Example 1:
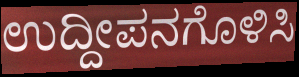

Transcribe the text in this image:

ಉದ್ದೀಪನಗೊಳಿಸಿ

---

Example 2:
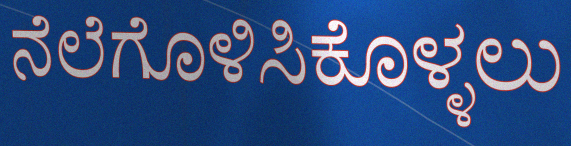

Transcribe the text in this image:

ನೆಲೆಗೊಳಿಸಿಕೊಳ್ಳಲು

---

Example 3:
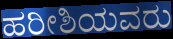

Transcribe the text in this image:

ಹರೀಶಿಯವರು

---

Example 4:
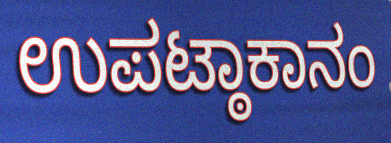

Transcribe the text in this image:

ಉಪಟ್ಠಾಕಾನಂ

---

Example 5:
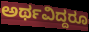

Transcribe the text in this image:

ಅರ್ಥವಿದ್ದರೂ